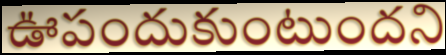
ఊపందుకుంటుందని